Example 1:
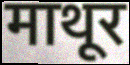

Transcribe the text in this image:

माथूर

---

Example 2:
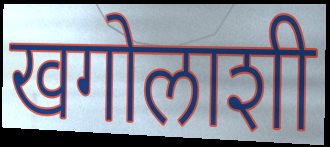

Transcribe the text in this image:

खगोलाशी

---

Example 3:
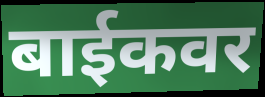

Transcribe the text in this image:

बाईकवर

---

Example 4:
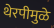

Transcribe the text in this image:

थेरपीमुळे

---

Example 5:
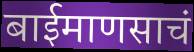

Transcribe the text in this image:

बाईमाणसाचं